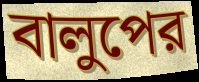
বালুপের